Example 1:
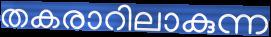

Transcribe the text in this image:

തകരാറിലാകുന്ന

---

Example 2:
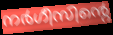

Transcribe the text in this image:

നർഗീസിന്റെ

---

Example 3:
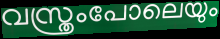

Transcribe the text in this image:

വസ്ത്രംപോലെയും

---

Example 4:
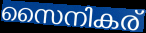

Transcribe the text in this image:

സൈനികര്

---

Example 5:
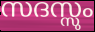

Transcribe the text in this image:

സദസ്സും